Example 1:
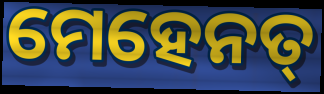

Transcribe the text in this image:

ମେହେନତ୍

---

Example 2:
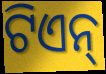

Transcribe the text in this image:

ଟିଏନ୍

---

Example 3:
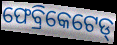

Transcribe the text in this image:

ଫେବ୍ରିକେଟେଡ୍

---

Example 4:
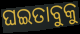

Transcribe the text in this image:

ଘଇତାବୁକୁ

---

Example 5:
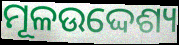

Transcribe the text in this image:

ମୂଳଉଦ୍ଦେଶ୍ୟ